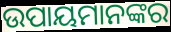
ଉପାୟମାନଙ୍କର